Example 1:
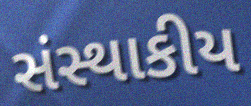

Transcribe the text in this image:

સંસ્થાકીય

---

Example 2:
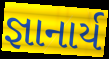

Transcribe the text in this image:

જ્ઞાનાર્ય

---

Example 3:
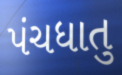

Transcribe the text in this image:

પંચધાતુ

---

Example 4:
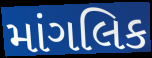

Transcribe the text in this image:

માંગલિક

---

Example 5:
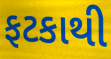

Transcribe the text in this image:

ફટકાથી